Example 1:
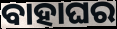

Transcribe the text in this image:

ବାହାଘର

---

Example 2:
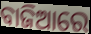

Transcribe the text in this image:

ବାଜିଆରେ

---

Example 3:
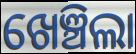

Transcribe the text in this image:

ଖେଞ୍ଚିଲା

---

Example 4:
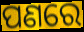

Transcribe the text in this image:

ପଣରେ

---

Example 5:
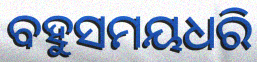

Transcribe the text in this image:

ବହୁସମୟଧରି